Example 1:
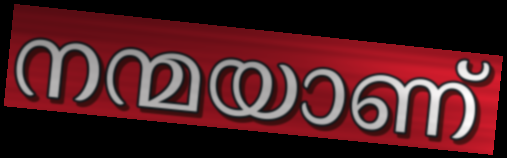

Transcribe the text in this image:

നന്മയാണ്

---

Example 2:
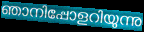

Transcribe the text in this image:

ഞാനിപ്പോളറിയുന്നു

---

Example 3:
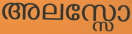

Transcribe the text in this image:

അലസ്സോ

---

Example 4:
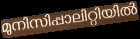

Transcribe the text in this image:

മുനിസിപ്പാലിറ്റിയിൽ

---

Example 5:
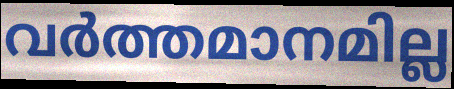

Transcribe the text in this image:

വർത്തമാനമില്ല